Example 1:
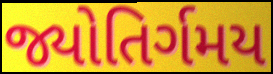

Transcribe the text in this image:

જ્યોતિર્ગમય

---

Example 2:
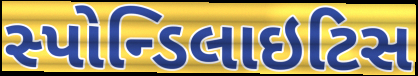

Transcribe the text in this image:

સ્પોન્ડિલાઇટિસ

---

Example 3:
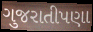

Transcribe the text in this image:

ગુજરાતીપણા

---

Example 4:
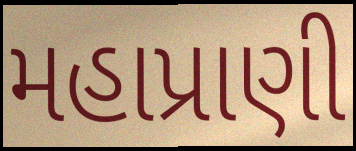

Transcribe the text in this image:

મહાપ્રાણી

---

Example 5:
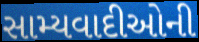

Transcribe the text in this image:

સામ્યવાદીઓની